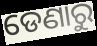
ଡେଣାରୁ